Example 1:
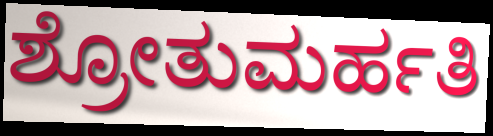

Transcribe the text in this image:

ಶ್ರೋತುಮರ್ಹತಿ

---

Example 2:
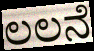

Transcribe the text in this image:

ಲಲನೆ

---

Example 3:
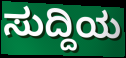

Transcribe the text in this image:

ಸುದ್ದಿಯ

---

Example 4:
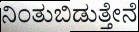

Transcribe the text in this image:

ನಿಂತುಬಿಡುತ್ತೇನೆ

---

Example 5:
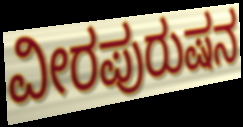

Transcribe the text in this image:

ವೀರಪುರುಷನ